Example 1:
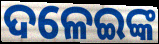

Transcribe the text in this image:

ଦଳେଇଙ୍କ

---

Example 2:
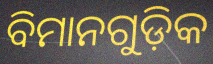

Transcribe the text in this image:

ବିମାନଗୁଡ଼ିକ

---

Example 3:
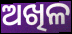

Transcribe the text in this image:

ଅଖିଳ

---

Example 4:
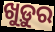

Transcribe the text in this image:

ଖୁଡ଼ୁର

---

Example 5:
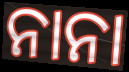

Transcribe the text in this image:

ନାନା